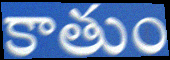
కాతుం